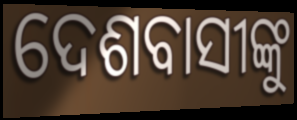
ଦେଶବାସୀଙ୍କୁ